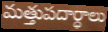
మత్తుపదార్ధాలు